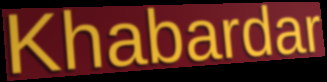
Khabardar